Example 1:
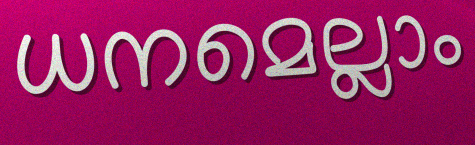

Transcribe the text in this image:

ധനമെല്ലാം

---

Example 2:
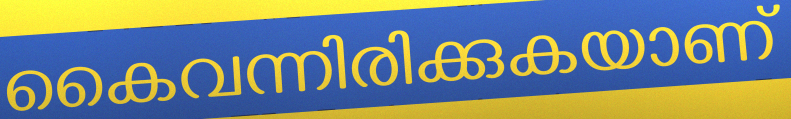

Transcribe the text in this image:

കൈവന്നിരിക്കുകയാണ്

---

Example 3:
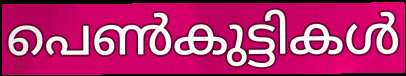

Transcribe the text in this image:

പെൺകുട്ടികൾ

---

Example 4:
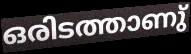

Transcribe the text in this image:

ഒരിടത്താണു്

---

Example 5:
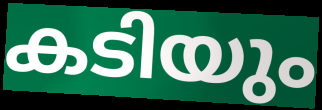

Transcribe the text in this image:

കടിയും